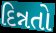
દિન્નતો